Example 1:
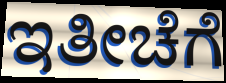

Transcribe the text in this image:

ಇತೀಚೆಗೆ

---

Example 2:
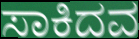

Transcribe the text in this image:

ಸಾಕಿದವ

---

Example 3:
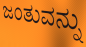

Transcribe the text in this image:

ಜಂತುವನ್ನು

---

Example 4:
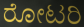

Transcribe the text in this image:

ರೋಟರಿ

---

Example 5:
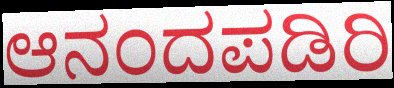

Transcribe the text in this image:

ಆನಂದಪಡಿರಿ